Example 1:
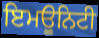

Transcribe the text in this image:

ਇਮਊਨਿਟੀ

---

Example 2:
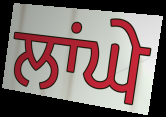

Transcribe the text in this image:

ਲਾਂਘੇ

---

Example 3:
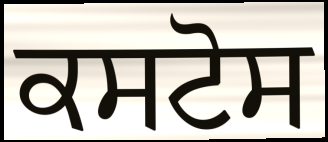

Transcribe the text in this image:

ਕਸਟੋਸ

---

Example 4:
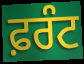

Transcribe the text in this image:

ਫ਼ਰੰਟ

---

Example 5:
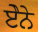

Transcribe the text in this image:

ਏੇਨੇ